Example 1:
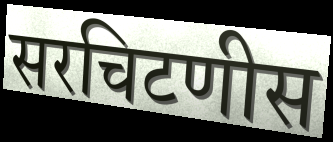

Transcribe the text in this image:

सरचिटणीस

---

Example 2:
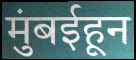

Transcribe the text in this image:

मुंबईहून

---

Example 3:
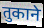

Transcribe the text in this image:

तुकाने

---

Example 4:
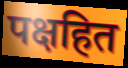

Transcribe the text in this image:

पक्षहित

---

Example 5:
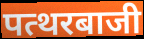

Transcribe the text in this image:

पत्थरबाजी